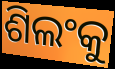
ଶିଲଂକୁ